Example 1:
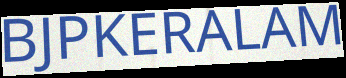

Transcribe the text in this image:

BJPKERALAM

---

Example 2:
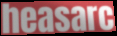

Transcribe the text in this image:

heasarc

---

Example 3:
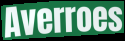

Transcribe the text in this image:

Averroes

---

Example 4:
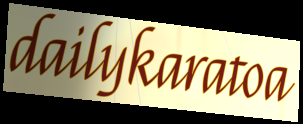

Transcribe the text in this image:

dailykaratoa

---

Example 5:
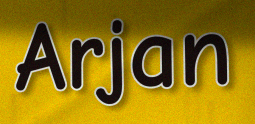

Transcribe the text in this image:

Arjan